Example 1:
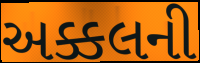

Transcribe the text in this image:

અક્કલની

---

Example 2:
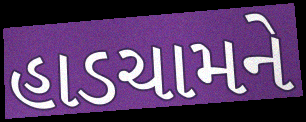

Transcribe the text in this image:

હાડચામને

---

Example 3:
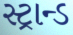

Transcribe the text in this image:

સ્ટ્રાન્ડ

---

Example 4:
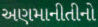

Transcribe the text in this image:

અણમાનીતીનો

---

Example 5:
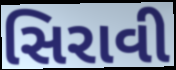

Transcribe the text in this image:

સિરાવી